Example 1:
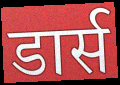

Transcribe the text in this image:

डार्स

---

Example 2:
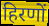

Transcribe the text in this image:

हिरणों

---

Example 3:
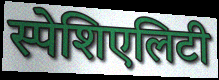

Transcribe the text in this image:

स्पेशिएलिटी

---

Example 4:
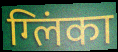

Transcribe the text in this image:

ग्लिंका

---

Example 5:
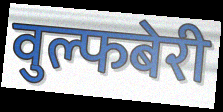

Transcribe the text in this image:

वुल्फबेरी